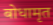
बोधामृत